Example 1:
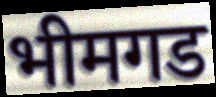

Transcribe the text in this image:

भीमगड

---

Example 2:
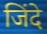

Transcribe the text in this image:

जिंदे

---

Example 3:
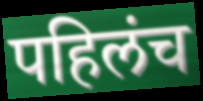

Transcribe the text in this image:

पहिलंच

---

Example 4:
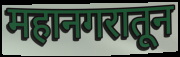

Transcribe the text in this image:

महानगरातून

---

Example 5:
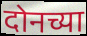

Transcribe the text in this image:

दोनच्या